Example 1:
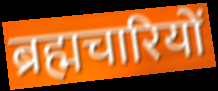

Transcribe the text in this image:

ब्रह्मचारियों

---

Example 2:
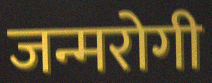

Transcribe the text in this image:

जन्मरोगी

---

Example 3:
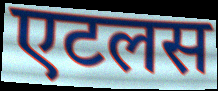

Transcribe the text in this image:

एटलस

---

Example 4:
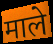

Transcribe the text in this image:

माले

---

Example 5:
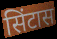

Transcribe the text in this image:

सिंटास